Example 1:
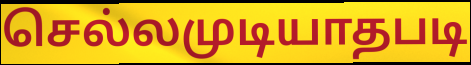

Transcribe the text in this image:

செல்லமுடியாதபடி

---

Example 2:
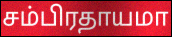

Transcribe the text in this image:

சம்பிரதாயமா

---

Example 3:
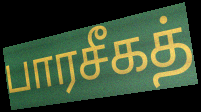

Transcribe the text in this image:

பாரசீகத்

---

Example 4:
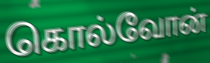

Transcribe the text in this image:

கொல்வோன்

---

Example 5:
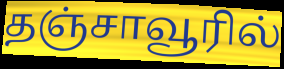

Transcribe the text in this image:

தஞ்சாவூரில்